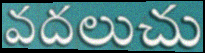
వదలుచు